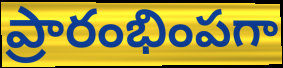
ప్రారంభింపగా